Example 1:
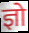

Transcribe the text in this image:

ज्ञो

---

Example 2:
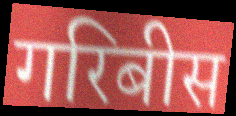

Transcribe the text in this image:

गरिबीस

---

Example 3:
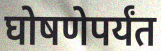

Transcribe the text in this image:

घोषणेपर्यंत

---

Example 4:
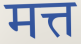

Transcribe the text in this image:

मत्त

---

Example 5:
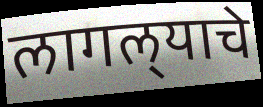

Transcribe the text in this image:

लागल्याचे